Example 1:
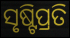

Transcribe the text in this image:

ସୃଷ୍ଟିପ୍ରତି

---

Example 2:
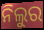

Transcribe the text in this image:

ନିଲୁର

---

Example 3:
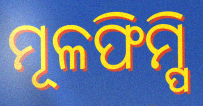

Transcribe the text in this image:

ମୂଳଫିମ୍ପି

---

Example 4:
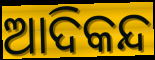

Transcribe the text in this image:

ଆଦିକନ୍ଦ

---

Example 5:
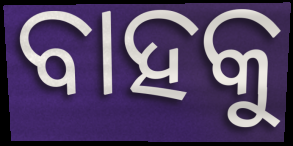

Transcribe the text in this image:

ବାହକୁ